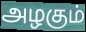
அழகும்